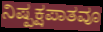
ನಿಷ್ಪಕ್ಷಪಾತವೂ